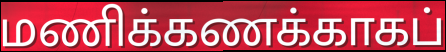
மணிக்கணக்காகப்